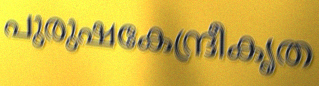
പുരുഷകേന്ദ്രീകൃത